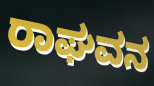
ರಾಘವನ